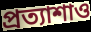
প্রত্যাশাও